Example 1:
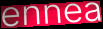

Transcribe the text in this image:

ennea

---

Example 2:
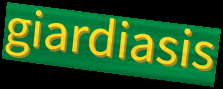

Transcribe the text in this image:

giardiasis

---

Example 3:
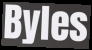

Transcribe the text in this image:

Byles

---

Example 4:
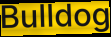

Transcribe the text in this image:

Bulldog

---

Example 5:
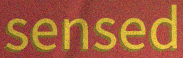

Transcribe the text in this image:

sensed